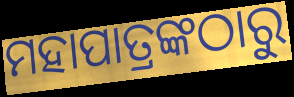
ମହାପାତ୍ରଙ୍କଠାରୁ